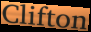
Clifton